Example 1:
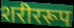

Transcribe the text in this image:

शरीररूप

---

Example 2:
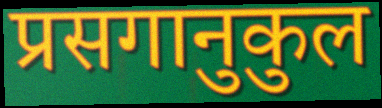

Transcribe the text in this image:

प्रसगानुकुल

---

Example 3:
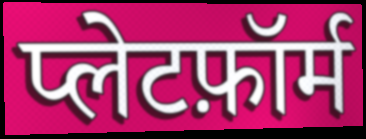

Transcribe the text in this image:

प्लेटफ़ॉर्म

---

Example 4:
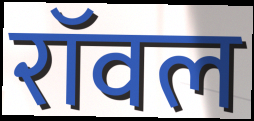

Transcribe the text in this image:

रॉवल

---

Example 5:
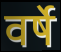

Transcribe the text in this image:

वर्षे